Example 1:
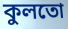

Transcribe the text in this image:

কুলতো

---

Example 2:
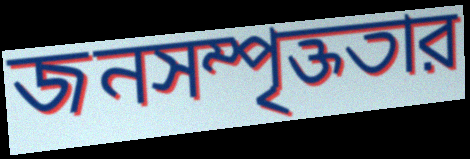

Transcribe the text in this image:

জনসম্পৃক্ততার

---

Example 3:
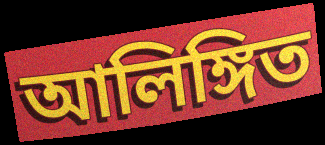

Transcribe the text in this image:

আলিঙ্গিত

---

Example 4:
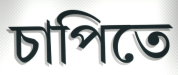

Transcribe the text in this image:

চাপিতে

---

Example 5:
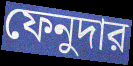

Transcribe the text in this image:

ফেনুদার